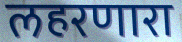
लहरणारा